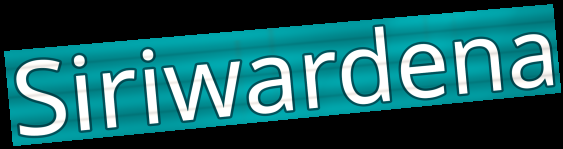
Siriwardena